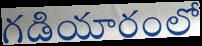
గడియారంలో